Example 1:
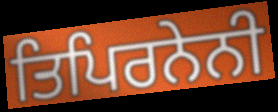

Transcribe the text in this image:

ਤਿਪਿਰਨੇਨੀ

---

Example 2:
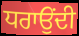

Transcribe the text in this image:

ਧਰਾਉਂਦੀ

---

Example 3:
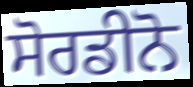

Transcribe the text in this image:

ਸੋਰਡੀਨੋ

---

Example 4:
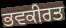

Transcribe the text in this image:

ਭਵਕੀਰਤ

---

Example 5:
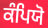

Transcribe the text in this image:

ਕੰਪਿਯੋ